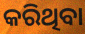
କରିଥିବା